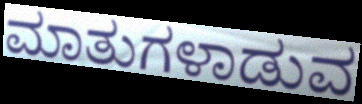
ಮಾತುಗಳಾಡುವ